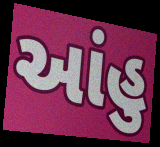
આંહુ